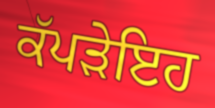
ਕੱਪੜੇਇਹ